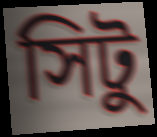
সিটু